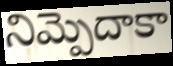
నిమ్పెదాకా